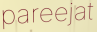
pareejat